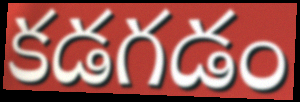
కడగడం